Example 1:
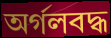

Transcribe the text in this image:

অর্গলবদ্ধ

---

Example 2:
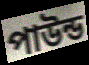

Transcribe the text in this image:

পাউন্ড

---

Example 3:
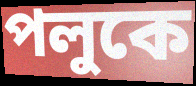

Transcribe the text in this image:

পলুকে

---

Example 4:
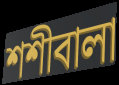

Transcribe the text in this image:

শশীবালা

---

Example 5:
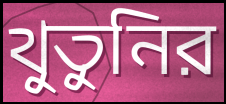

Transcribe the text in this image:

থুতুনির